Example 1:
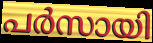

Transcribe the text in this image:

പർസായി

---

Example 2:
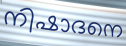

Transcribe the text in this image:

നിഷാദനെ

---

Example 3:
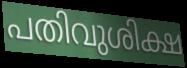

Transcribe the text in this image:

പതിവുശിക്ഷ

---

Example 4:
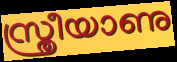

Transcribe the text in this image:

സ്ത്രീയാണു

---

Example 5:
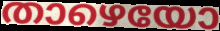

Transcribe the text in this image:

താഴെയോ